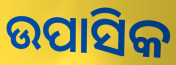
ଉପାସିକ